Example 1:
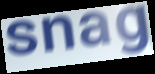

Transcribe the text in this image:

snag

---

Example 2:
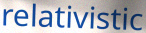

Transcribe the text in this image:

relativistic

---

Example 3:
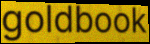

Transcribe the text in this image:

goldbook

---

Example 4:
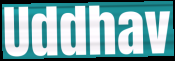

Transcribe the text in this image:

Uddhav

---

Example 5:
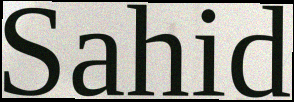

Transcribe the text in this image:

Sahid